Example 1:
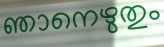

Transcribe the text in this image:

ഞാനെഴുതും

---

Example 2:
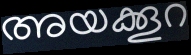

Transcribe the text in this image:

അയക്കൂറ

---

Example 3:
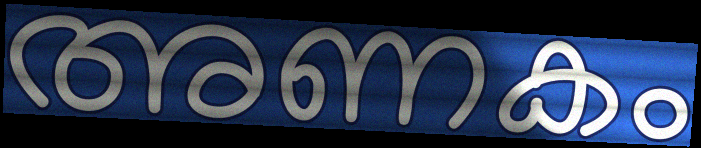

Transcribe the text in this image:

അണകം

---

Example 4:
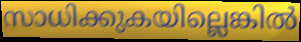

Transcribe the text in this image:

സാധിക്കുകയില്ലെങ്കിൽ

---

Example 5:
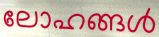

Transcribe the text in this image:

ലോഹങ്ങൾ